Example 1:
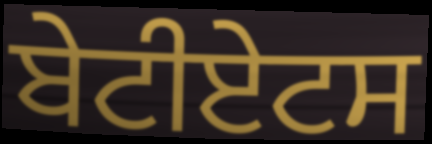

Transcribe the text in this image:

ਬੇਟੀਏਟਸ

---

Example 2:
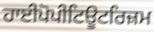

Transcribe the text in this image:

ਹਾਈਪੋਪੀਟਿਊਟਰਿਜ਼ਮ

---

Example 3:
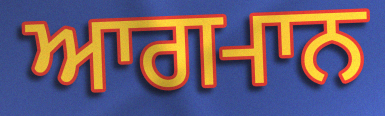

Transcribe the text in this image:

ਆਗ੍ਮਾਨ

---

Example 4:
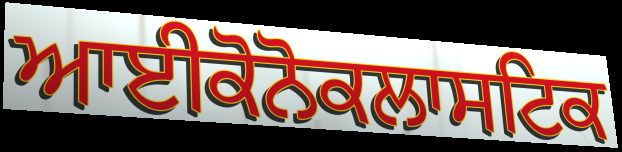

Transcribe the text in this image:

ਆਈਕੋਨੋਕਲਾਸਟਿਕ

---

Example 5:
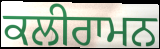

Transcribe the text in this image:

ਕਲੀਰਾਮਨ